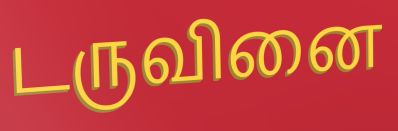
டருவினை